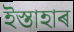
ইস্তাহাৰ